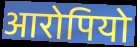
आरोपियो